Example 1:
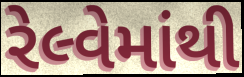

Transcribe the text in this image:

રેલ્વેમાંથી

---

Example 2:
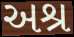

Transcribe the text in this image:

અશ્ર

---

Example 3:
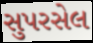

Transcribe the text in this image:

સુપરસેલ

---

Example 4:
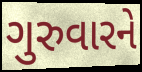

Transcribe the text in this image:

ગુરુવારને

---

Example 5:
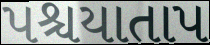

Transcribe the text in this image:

પશ્ચયાતાપ